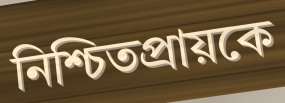
নিশ্চিতপ্রায়কে